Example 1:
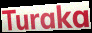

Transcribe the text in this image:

Turaka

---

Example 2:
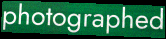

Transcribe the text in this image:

photographed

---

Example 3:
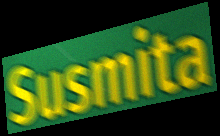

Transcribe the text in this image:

Susmita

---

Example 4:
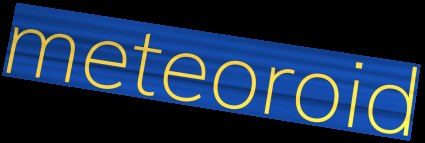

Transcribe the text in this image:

meteoroid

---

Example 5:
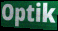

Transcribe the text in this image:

Optik